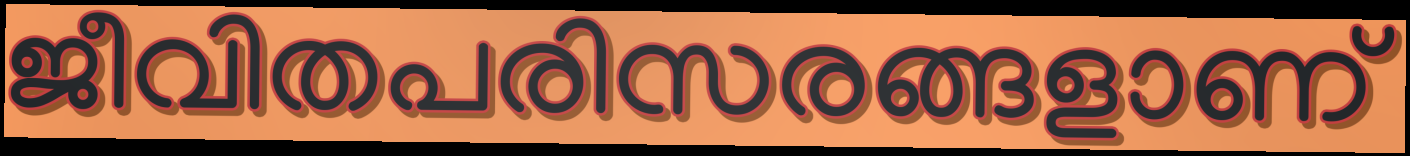
ജീവിതപരിസരങ്ങളാണ്